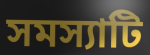
সমস্যাটি